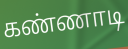
கண்ணாடி